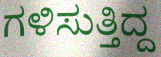
ಗಳಿಸುತ್ತಿದ್ದ